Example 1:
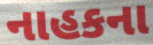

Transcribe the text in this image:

નાહકના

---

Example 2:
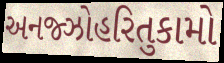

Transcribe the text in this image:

અનજ્ઝોહરિતુકામો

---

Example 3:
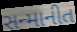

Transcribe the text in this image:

સન્માનીત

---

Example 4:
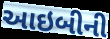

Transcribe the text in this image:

આઇબીની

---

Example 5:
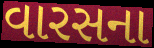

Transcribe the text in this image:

વારસના